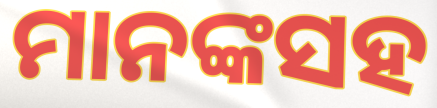
ମାନଙ୍କସହ